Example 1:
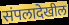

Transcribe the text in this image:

संपलादेखील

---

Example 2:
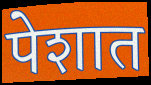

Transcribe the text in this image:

पेशात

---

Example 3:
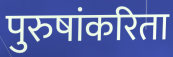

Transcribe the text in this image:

पुरुषांकरिता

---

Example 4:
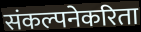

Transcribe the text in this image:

संकल्पनेकरिता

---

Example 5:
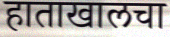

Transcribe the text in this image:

हाताखालचा